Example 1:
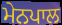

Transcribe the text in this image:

ਮੇਨਪਾਲ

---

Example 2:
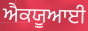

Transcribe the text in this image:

ਐਕਯੂਆਈ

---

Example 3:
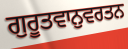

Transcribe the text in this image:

ਗੁਰੂਤਵਾਨੁਵਰਤਨ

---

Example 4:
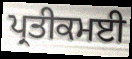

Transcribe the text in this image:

ਪ੍ਰਤੀਕਮਈ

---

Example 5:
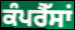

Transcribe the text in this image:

ਕੰਪਰੈੱਸਾਂ